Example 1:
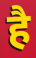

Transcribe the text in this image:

है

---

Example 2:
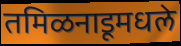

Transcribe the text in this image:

तमिळनाडूमधले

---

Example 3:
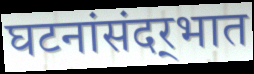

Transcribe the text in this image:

घटनांसंदर्भात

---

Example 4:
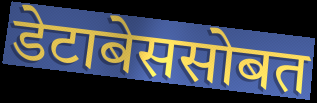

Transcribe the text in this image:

डेटाबेससोबत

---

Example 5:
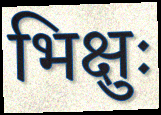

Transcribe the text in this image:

भिक्षुः